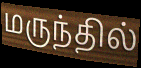
மருந்தில்